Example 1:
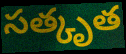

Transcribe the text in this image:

సత్కృత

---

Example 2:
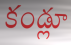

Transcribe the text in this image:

కండ్లూ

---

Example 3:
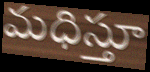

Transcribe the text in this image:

మధిస్తూ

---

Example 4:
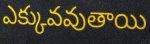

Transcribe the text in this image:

ఎక్కువవుతాయి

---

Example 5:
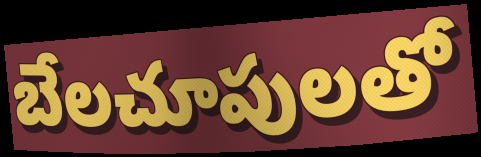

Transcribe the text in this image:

బేలచూపులతో